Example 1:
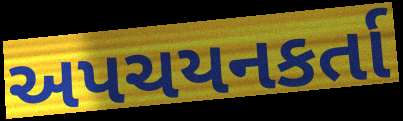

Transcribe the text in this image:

અપચયનકર્તા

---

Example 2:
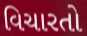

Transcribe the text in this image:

વિચારતો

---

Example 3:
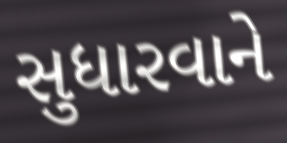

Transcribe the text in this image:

સુધારવાને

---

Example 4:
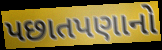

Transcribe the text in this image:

પછાતપણાનો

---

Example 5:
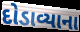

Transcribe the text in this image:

દોડાવ્યાના